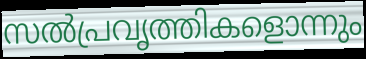
സൽപ്രവൃത്തികളൊന്നും